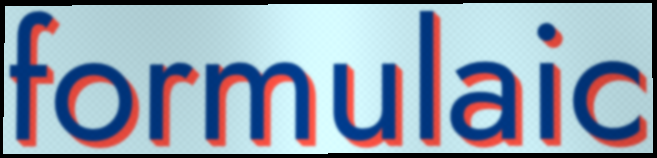
formulaic